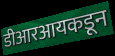
डीआरआयकडून